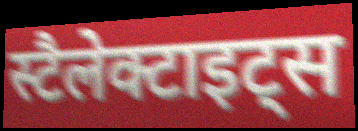
स्टैलेक्टाइट्स